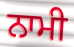
ਨਾਮੀ